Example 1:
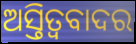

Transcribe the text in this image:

ଅସ୍ତିତ୍ବବାଦର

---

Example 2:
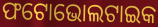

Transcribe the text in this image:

ଫଟୋଭୋଲଟାଇକ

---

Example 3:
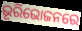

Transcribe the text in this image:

ଭୂରିଭୋଜନରେ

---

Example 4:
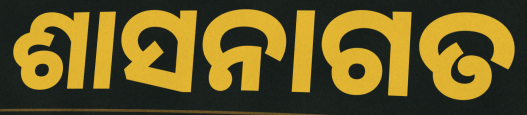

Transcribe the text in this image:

ଶାସନାଗତ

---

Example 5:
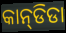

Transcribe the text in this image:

କାନ୍‌ଡିଡା